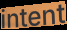
intent